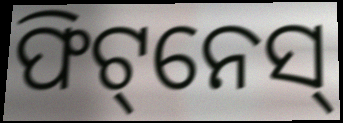
ଫିଟ୍‌ନେସ୍